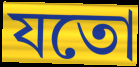
যতো